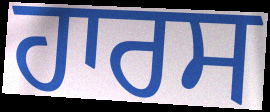
ਹਾਰਸ